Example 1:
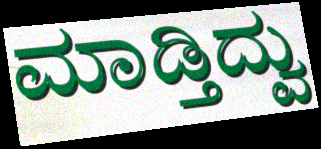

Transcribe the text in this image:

ಮಾಡ್ತಿದ್ವು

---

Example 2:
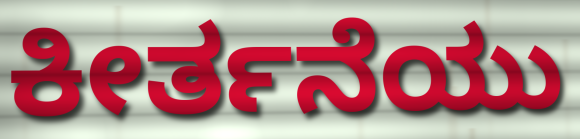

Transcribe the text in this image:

ಕೀರ್ತನೆಯು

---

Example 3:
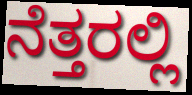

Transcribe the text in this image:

ನೆತ್ತರಲ್ಲಿ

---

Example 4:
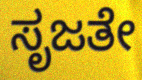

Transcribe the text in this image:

ಸೃಜತೇ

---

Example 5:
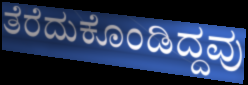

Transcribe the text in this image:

ತೆರೆದುಕೊಂಡಿದ್ದವು